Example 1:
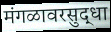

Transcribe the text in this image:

मंगळावरसुद्धा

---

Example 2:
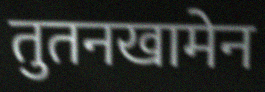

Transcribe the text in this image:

तुतनखामेन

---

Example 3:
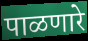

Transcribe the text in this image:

पाळणारे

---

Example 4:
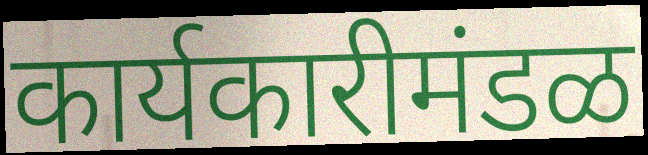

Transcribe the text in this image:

कार्यकारीमंडळ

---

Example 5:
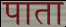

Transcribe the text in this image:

पाता